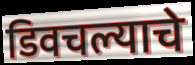
डिवचल्याचे